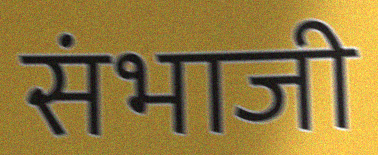
संभाजी